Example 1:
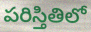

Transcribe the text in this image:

పరిస్తితిలో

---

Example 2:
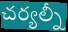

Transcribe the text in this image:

చర్యల్నీ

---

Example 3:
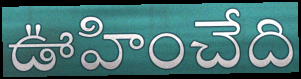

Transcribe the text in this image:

ఊహించేది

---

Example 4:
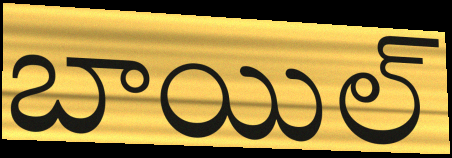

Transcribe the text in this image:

బాయిల్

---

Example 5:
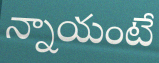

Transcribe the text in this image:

న్నాయంటే